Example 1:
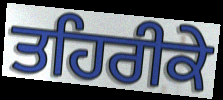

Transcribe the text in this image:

ਤਹਿਰੀਕੇ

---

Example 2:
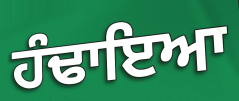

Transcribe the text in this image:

ਹੰਢਾਇਆ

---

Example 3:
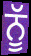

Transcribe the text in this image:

ਨੂੱ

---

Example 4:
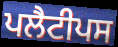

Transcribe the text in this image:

ਪਲੈਟੀਪਸ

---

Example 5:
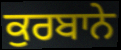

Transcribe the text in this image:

ਕੁਰਬਾਨੇ